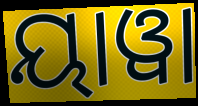
ୟାୱା